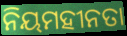
ନିୟମହୀନତା